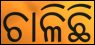
ଚାଳିଛି